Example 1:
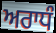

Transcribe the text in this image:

ਅਰਾਧੰ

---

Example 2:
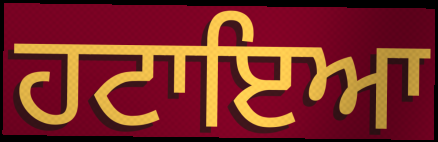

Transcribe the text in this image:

ਹਟਾਇਆ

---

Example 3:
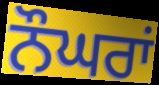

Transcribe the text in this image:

ਨੌਘਰਾਂ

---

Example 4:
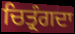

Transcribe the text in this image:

ਚਿਤ੍ਰੰਗਦਾ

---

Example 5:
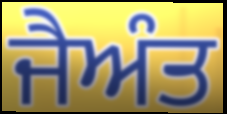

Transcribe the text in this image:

ਜੈਅੰਤ